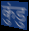
कुंडु